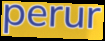
perur